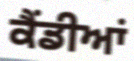
ਕੈਂਡੀਆਂ